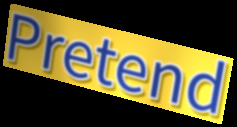
Pretend